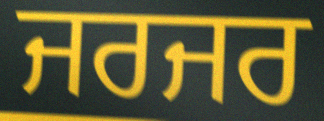
ਜਰਜਰ